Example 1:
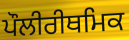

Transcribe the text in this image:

ਪੌਲੀਰੀਥਮਿਕ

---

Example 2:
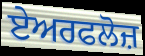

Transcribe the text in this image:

ਏਅਰਫਲੋਜ਼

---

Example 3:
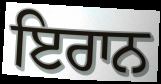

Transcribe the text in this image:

ਇਰਾਨ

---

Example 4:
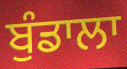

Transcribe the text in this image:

ਬੁੰਡਾਲਾ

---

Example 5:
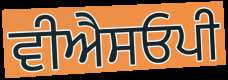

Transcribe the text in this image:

ਵੀਐਸਓਪੀ